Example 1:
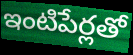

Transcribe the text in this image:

ఇంటిపేర్లతో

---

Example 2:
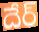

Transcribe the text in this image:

దేర్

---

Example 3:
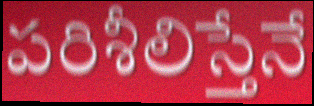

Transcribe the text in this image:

పరిశీలిస్తేనే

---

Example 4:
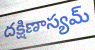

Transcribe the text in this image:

దక్షిణాస్యమ్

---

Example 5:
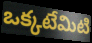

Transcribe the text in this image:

ఒక్కటేమిటి